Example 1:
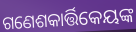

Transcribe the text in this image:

ଗଣେଶକାର୍ତ୍ତିକେୟଙ୍କ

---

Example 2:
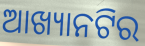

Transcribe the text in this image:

ଆଖ୍ୟାନଟିର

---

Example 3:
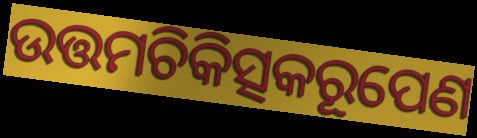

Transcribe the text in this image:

ଉତ୍ତମଚିକିତ୍ସକରୂପେଣ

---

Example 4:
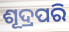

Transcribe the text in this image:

ଶୂଦ୍ରପରି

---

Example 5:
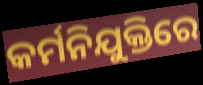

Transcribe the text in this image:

କର୍ମନିଯୁକ୍ତିରେ